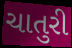
ચાતુરી